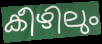
കീഴിലും